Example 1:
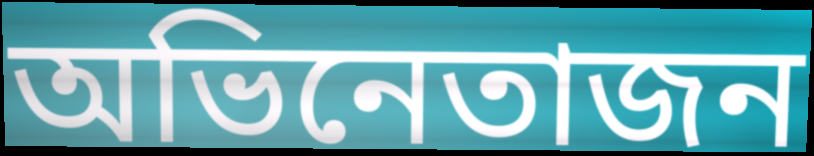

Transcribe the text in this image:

অভিনেতাজন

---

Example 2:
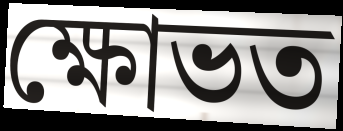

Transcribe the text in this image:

ক্ষোভত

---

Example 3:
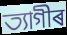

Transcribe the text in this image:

ত্যাগীৰ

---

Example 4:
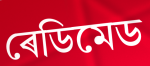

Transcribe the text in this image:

ৰেডিমেড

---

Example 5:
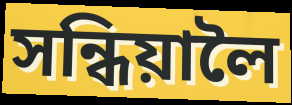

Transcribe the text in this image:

সন্ধিয়ালৈ